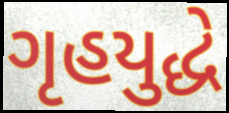
ગૃહયુદ્ધે